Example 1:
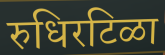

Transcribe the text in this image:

रुधिरटिळा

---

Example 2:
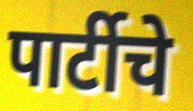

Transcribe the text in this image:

पार्टीचे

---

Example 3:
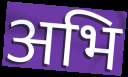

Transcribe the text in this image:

अभि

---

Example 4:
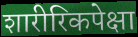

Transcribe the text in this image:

शारीरिकपेक्षा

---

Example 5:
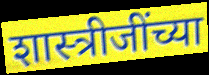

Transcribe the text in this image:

शास्त्रीजींच्या